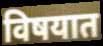
विषयात